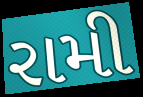
રામી